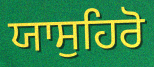
ਯਾਸੁਹਿਰੋ